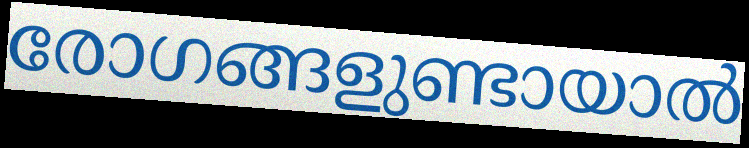
രോഗങ്ങളുണ്ടായാൽ